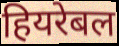
हियरेबल